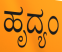
ಹೃದ್ಯಂ